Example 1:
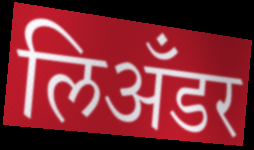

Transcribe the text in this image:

लिअँडर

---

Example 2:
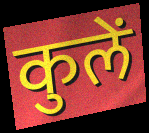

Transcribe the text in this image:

कुलें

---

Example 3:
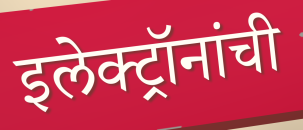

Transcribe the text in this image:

इलेक्ट्रॉनांची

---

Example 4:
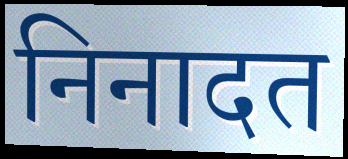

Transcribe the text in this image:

निनादत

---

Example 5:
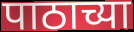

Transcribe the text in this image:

पाठाच्या